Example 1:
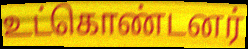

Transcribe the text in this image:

உட்கொண்டனர்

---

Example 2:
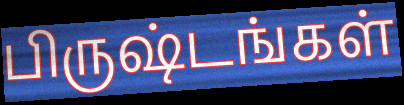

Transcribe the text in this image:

பிருஷ்டங்கள்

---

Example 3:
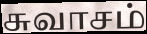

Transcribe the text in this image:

சுவாசம்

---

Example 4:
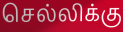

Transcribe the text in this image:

செல்லிக்கு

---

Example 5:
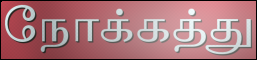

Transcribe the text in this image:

நோக்கத்து